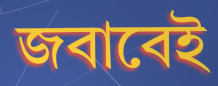
জবাবেই